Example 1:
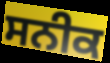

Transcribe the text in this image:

ਸਨੀਕ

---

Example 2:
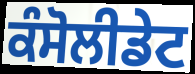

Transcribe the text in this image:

ਕੰਸੋਲੀਡੇਟ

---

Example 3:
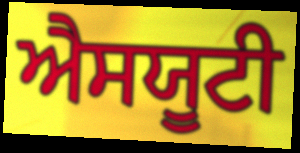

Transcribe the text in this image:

ਐਸਯੂਟੀ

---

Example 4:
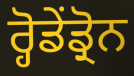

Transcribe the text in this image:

ਰ੍ਹੋਡੇਂਡ੍ਰੋਨ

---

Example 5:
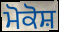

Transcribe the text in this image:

ਮੋਕੋਸ਼